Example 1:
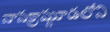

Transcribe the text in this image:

నానక్రామ్గూడలోని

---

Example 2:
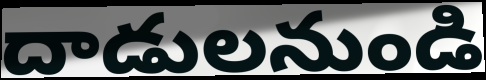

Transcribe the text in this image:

దాడులనుండి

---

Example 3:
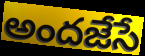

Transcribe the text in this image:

అందజేసే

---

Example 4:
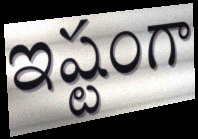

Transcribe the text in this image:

ఇష్టంగా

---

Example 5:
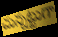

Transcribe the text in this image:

చున్నట్టుగా